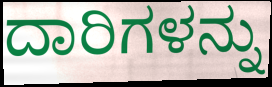
ದಾರಿಗಳನ್ನು